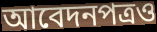
আবেদনপত্রও